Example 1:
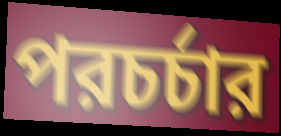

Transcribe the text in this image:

পরচর্চার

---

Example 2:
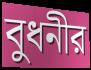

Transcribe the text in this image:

বুধনীর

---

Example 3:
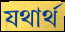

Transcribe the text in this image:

যথার্থ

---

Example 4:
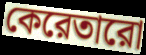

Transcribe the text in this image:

কেরেতারো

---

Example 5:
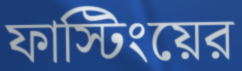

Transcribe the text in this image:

ফাস্টিংয়ের